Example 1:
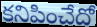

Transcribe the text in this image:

కనిపించేదో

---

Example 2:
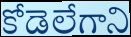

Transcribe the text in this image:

కోడెలేగాని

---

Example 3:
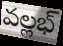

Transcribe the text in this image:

వల్లభ్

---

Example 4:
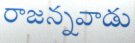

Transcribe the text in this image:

రాజన్నవాడు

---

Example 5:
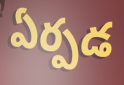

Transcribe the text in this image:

ఏర్పడ